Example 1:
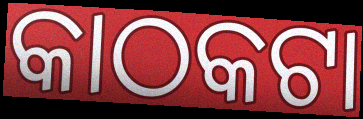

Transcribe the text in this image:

କାଠକଟା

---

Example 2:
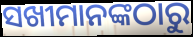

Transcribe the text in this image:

ସଖୀମାନଙ୍କଠାରୁ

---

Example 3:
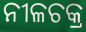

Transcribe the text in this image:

ନୀଳଚକ୍ର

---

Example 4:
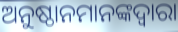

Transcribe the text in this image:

ଅନୁଷ୍ଠାନମାନଙ୍କଦ୍ଵାରା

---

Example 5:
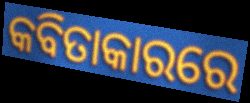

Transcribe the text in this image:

କବିତାକାରରେ